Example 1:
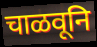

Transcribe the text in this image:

चाळवूनि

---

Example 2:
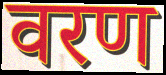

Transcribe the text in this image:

वरण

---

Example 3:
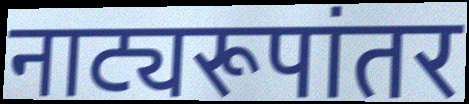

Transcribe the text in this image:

नाट्यरूपांतर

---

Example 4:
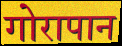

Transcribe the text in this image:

गोरापान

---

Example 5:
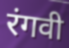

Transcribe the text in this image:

रंगवी